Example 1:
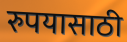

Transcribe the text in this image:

रुपयासाठी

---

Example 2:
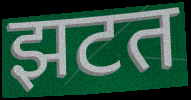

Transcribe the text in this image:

झटत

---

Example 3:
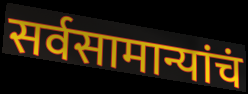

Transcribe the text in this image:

सर्वसामान्यांचं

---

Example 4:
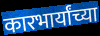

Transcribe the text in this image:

कारभार्यांच्या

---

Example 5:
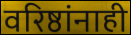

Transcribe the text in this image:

वरिष्ठांनाही